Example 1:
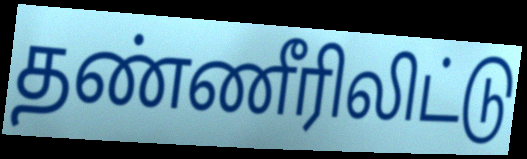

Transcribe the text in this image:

தண்ணீரிலிட்டு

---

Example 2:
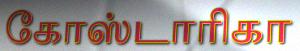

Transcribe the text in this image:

கோஸ்டாரிகா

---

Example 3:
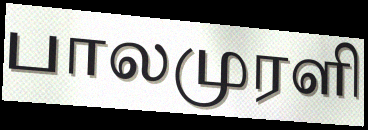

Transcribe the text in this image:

பாலமுரளி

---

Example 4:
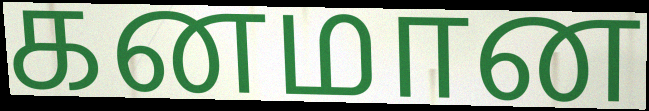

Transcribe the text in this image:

கனமான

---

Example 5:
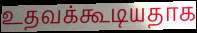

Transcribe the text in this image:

உதவக்கூடியதாக